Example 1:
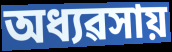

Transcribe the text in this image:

অধ্যৱসায়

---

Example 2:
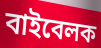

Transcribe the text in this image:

বাইবেলক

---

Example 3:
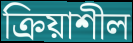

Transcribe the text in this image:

ক্ৰিয়াশীল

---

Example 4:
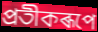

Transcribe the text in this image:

প্ৰতীকৰূপে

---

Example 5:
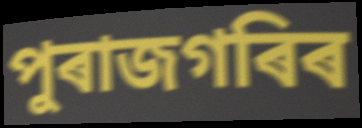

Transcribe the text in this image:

পুৰাজগৰিৰ